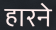
हारने